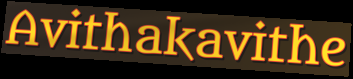
Avithakavithe